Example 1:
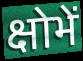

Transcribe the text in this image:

क्षोभें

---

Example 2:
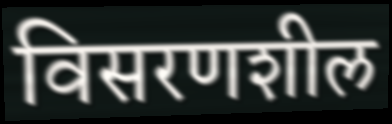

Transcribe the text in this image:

विसरणशील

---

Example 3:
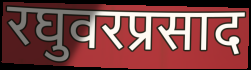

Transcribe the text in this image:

रघुवरप्रसाद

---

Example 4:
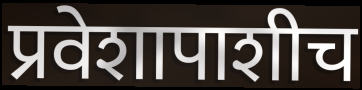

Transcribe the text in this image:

प्रवेशापाशीच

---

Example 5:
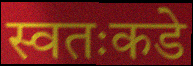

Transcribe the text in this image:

स्वतःकडे